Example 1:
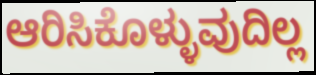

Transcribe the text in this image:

ಆರಿಸಿಕೊಳ್ಳುವುದಿಲ್ಲ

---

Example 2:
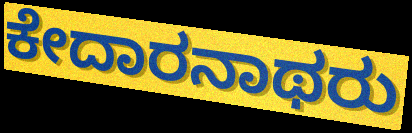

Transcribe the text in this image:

ಕೇದಾರನಾಥರು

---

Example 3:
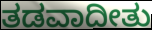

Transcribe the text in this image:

ತಡವಾದೀತು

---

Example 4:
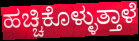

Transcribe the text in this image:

ಹಚ್ಚಿಕೊಳ್ಳುತ್ತಾಳೆ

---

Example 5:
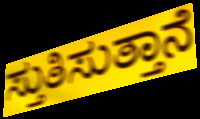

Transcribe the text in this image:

ಸ್ತುತಿಸುತ್ತಾನೆ